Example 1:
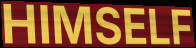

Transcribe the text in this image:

HIMSELF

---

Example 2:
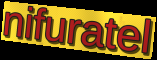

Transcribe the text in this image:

nifuratel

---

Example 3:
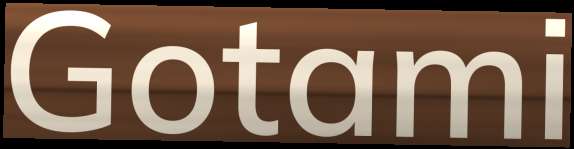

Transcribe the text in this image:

Gotami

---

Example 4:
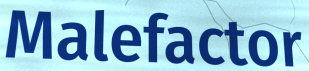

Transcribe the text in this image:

Malefactor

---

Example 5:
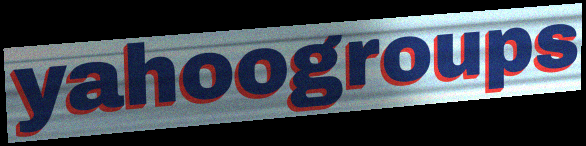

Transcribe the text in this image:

yahoogroups